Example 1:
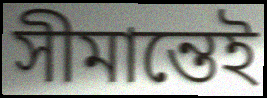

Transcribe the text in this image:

সীমান্তেই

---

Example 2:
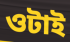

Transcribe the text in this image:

ওটাই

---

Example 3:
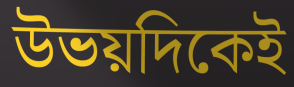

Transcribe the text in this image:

উভয়দিকেই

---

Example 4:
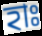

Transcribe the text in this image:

হাঃ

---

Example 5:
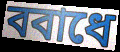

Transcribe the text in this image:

ববাধে